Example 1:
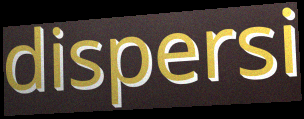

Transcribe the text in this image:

dispersi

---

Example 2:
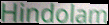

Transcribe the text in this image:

Hindolam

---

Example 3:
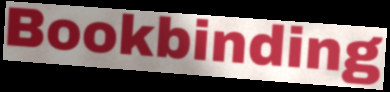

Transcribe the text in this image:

Bookbinding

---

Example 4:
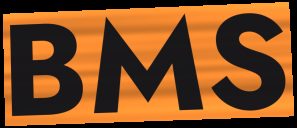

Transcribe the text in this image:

BMS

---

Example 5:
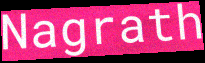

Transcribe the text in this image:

Nagrath